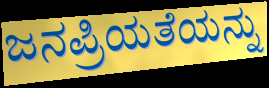
ಜನಪ್ರಿಯತೆಯನ್ನು